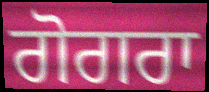
ਗੋਗਰਾ